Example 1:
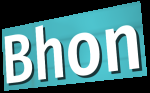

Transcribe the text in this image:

Bhon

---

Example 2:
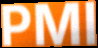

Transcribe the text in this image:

PMI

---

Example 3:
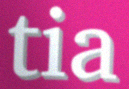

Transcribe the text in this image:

tia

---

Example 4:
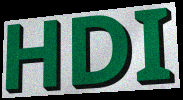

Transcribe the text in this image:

HDI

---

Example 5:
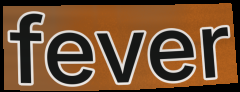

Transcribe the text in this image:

fever